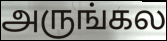
அருங்கல